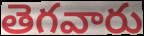
తెగవారు